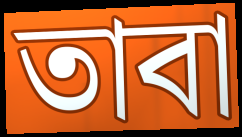
তাবা